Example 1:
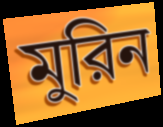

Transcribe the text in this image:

মুরিন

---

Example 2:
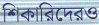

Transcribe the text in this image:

শিকারিদেরও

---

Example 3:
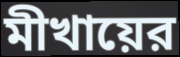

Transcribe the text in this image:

মীখায়ের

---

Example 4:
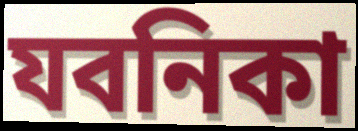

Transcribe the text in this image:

যবনিকা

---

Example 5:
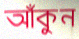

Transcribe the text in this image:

আঁকুন